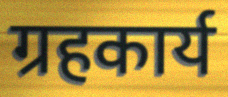
ग्रहकार्य